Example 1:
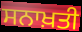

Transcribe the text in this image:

ਸਨਾਖ਼ਤੀ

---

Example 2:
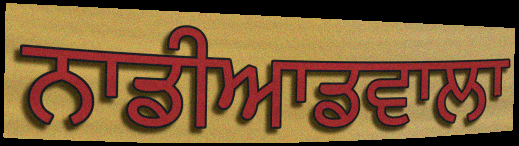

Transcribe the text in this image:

ਨਾਡੀਆਡਵਾਲਾ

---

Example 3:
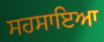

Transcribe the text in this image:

ਸਹਸਾਇਆ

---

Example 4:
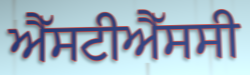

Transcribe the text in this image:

ਐੱਸਟੀਐੱਸਸੀ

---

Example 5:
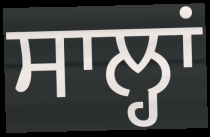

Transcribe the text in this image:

ਸਾਲ੍ਹਾਂ